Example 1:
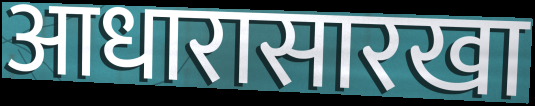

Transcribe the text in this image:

आधारासारखा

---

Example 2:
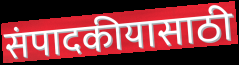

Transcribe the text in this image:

संपादकीयासाठी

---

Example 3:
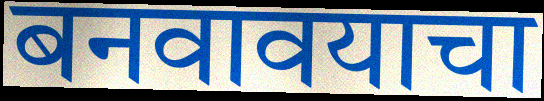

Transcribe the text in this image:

बनवावयाचा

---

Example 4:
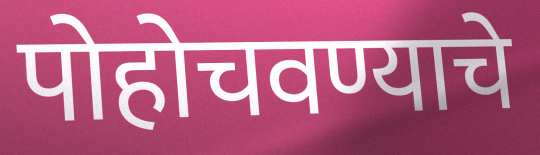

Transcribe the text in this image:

पोहोचवण्याचे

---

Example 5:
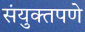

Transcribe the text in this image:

संयुक्तपणे